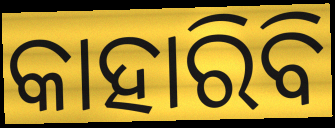
କାହାରିବି